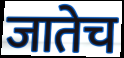
जातेच